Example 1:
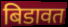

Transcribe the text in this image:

बिडावत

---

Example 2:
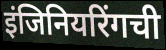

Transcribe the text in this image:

इंजिनियरिंगची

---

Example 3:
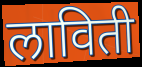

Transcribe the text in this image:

लाविती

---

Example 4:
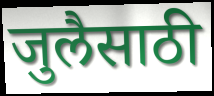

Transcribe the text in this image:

जुलैसाठी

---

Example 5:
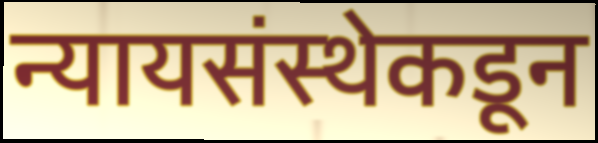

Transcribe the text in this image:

न्यायसंस्थेकडून